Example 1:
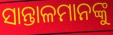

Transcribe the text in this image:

ସାନ୍ତାଳମାନଙ୍କୁ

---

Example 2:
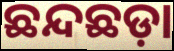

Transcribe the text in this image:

ଛନ୍ଦଛଡ଼ା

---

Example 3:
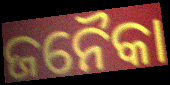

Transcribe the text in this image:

ଜନୈକା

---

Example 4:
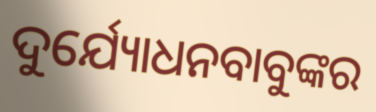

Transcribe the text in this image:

ଦୁର୍ଯ୍ୟୋଧନବାବୁଙ୍କର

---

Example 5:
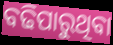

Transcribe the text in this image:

ବଢିପାରୁଥିବା